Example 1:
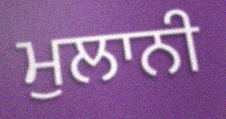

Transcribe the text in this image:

ਮੁਲਾਨੀ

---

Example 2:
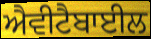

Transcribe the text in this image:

ਐਵੀਟੈਬਾਈਲ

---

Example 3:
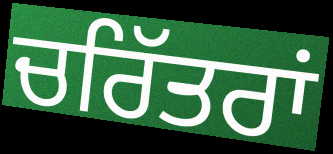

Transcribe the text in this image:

ਚਰਿੱਤਰਾਂ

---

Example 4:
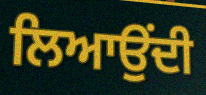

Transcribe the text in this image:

ਲਿਆਉਂਦੀ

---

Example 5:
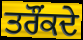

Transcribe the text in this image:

ਤਰੌਂਕਦੇ